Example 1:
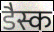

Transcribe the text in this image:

डैस्क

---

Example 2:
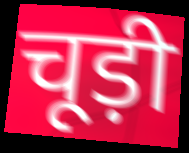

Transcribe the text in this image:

चूड़ी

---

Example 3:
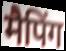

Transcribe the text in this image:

मैपिंग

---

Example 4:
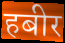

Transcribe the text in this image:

हबीर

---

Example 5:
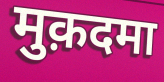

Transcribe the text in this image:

मुक़दमा